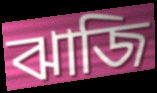
ঝাজি